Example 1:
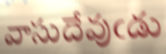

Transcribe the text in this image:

వాసుదేవుఁడు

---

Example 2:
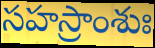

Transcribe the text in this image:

సహస్రాంశుః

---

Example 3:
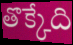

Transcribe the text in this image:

తొక్కేది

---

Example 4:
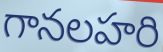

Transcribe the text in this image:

గానలహరి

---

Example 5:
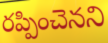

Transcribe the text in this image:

రప్పించెనని